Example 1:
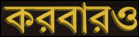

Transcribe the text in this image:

করবারও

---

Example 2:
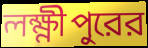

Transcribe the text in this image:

লক্ষ্ণীপুরের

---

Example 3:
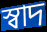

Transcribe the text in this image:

স্বাদ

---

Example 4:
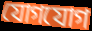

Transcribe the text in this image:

যোগযোগ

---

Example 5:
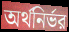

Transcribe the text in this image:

অর্থনির্ভর